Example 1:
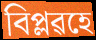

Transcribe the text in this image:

বিপ্লৱহে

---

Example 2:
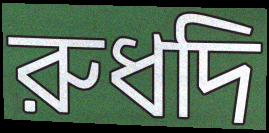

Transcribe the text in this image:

ৰুধদি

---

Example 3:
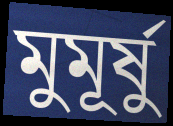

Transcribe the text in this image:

মুমূৰ্ষু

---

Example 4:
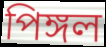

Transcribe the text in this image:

পিঙ্গল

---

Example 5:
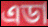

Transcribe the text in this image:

এডা